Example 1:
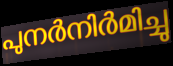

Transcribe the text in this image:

പുനർനിർമിച്ചു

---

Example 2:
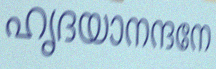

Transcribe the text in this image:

ഹൃദയാനന്ദനേ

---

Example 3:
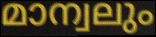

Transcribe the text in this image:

മാന്വലും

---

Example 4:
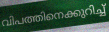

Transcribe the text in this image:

വിപത്തിനെക്കുറിച്ച്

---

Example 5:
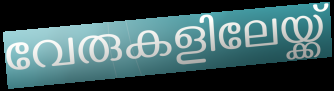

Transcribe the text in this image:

വേരുകളിലേയ്ക്ക്